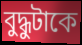
বুদ্ধুটাকে